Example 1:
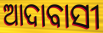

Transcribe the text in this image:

ଆଦାବାସୀ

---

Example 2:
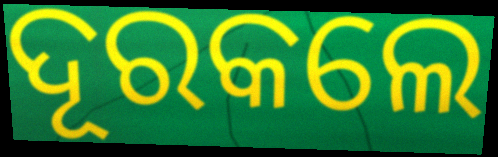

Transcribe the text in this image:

ଦୂରକଲେ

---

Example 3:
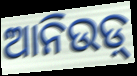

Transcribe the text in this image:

ଆନିଉଡ଼୍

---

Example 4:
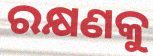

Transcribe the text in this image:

ରକ୍ଷଣକୁ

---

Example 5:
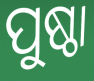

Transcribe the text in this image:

ପୁଷ୍ଠା